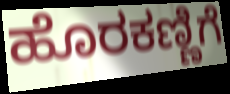
ಹೊರಕಣ್ಣಿಗೆ